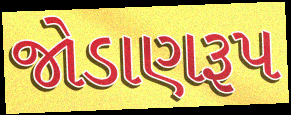
જોડાણરૂપ